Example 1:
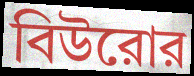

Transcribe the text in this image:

বিউরোর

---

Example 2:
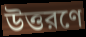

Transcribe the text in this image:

উত্তরণে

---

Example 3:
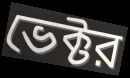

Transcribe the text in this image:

ভেক্টর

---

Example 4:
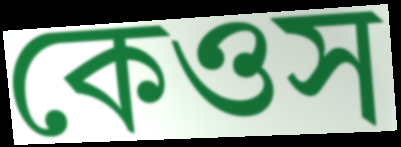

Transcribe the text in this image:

কেওস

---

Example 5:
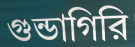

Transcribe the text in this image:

গুন্ডাগিরি